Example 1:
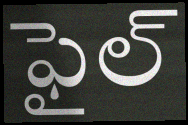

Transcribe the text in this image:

ఫైల్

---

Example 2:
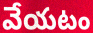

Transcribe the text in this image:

వేయటం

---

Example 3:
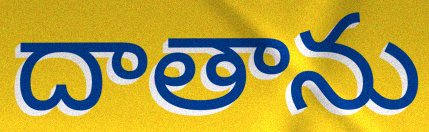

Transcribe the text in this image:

దాతాను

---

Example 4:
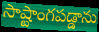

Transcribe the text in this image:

సాష్టాంగపడ్డాను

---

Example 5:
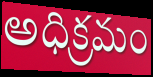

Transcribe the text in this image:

అధిక్రమం